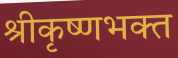
श्रीकृष्णभक्त